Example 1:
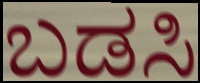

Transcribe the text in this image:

ಬಡಸಿ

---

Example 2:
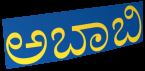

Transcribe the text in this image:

ಅಬಾಬಿ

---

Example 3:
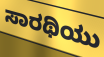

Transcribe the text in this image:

ಸಾರಥಿಯು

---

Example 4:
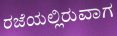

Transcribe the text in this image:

ರಜೆಯಲ್ಲಿರುವಾಗ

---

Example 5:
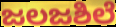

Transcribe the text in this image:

ಜಲಜಶಿಲೆ